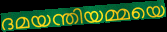
ദമയന്തിയമ്മയെ